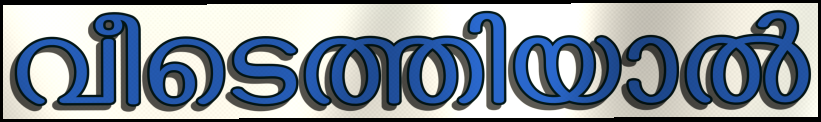
വീടെത്തിയാൽ